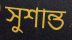
সুশান্ত